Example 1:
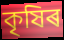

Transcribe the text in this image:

কৃষিৰ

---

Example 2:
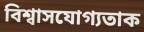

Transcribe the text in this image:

বিশ্বাসযোগ্যতাক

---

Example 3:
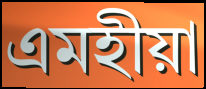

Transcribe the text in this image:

এমহীয়া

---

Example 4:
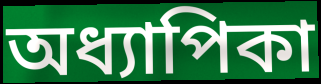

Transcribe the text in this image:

অধ্যাপিকা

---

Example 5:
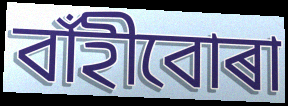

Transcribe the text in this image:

বাঁহীবোৰা